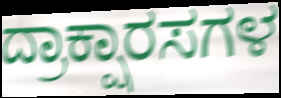
ದ್ರಾಕ್ಷಾರಸಗಳ